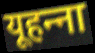
यूहन्ना